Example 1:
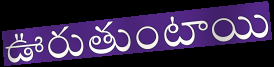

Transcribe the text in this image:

ఊరుతుంటాయి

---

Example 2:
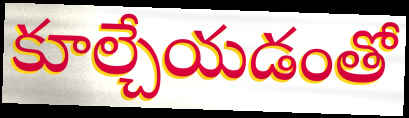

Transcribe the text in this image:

కూల్చేయడంతో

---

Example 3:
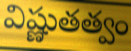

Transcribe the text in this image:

విష్ణుతత్వం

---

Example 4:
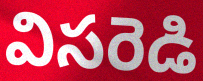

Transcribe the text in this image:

విసరెడి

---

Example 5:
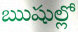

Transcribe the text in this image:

ఋషుల్లో